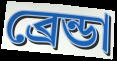
ব্রেন্ডা